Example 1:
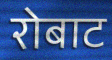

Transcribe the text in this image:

रोबाट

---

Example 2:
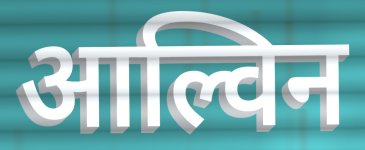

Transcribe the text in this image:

आल्विन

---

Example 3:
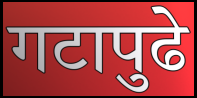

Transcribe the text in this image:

गटापुढे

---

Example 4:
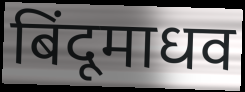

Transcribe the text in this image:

बिंदूमाधव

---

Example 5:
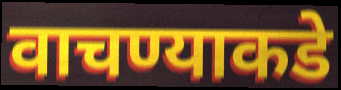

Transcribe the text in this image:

वाचण्याकडे